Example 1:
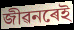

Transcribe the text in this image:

জীৱনৰেই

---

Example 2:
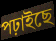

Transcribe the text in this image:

পঢ়াইছে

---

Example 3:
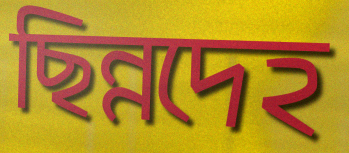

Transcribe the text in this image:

ছিন্নদেহ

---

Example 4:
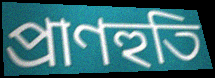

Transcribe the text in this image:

প্ৰাণহুতি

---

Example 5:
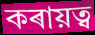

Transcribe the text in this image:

কৰায়ত্ব